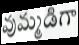
వుమ్మడిగా